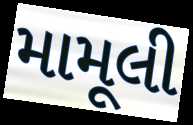
મામૂલી